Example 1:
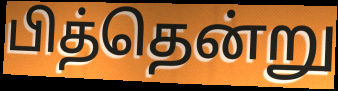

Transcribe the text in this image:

பித்தென்று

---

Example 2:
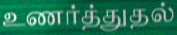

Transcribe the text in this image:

உணர்த்துதல்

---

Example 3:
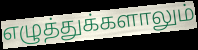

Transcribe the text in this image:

எழுத்துக்களாலும்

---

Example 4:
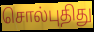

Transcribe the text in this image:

சொல்புதிது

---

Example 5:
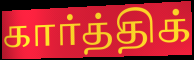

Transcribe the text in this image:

கார்த்திக்